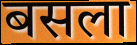
बसला